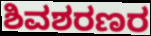
ಶಿವಶರಣರ